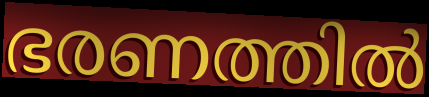
ഭരണത്തിൽ